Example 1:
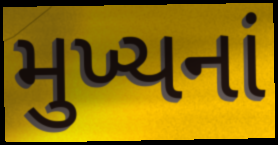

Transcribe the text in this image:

મુખ્યનાં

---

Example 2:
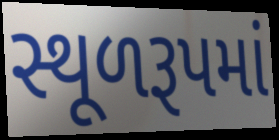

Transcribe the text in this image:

સ્થૂળરૂપમાં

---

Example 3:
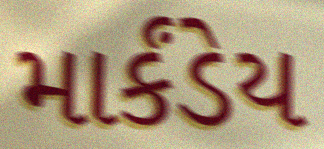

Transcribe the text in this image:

માર્કંડેય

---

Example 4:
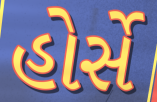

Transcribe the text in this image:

હોર્સે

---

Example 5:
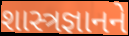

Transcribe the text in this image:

શાસ્ત્રજ્ઞાનને